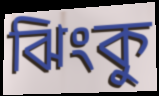
ঝিংকু